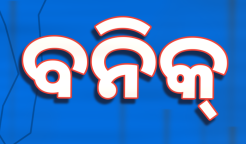
ବନିକ୍